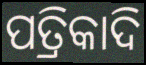
ପତ୍ରିକାଦି